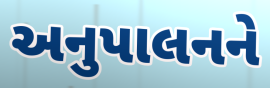
અનુપાલનને